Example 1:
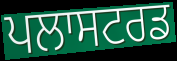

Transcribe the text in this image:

ਪਲਾਸਟਰਡ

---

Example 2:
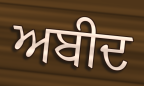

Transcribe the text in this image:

ਅਬੀਦ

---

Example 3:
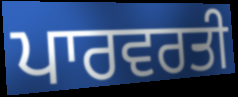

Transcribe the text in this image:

ਪਾਰਵਰਤੀ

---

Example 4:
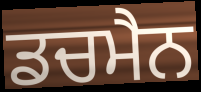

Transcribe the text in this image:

ਡਚਮੈਨ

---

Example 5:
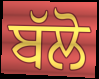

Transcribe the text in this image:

ਬੱਲੋ